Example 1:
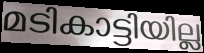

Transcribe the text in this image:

മടികാട്ടിയില്ല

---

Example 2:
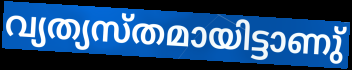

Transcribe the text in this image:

വ്യത്യസ്തമായിട്ടാണു്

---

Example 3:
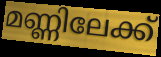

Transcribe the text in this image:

മണ്ണിലേക്ക്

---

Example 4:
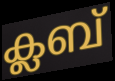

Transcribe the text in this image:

ക്ലബ്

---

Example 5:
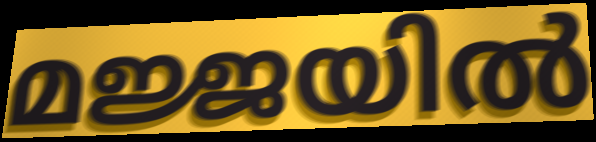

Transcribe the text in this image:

മജ്ജയിൽ